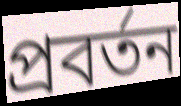
প্রবর্তন